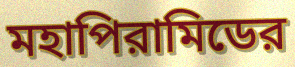
মহাপিরামিডের